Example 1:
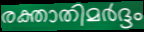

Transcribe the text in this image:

രക്താതിമർദ്ദം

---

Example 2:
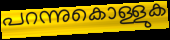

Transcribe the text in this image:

പറന്നുകൊള്ളുക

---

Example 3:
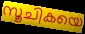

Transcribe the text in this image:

സൂചികയെ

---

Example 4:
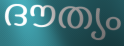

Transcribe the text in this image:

ദൗത്യം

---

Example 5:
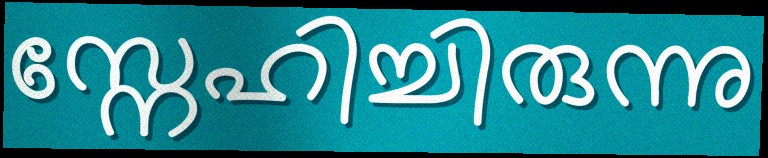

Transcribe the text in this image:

സ്നേഹിച്ചിരുന്നു